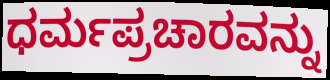
ಧರ್ಮಪ್ರಚಾರವನ್ನು